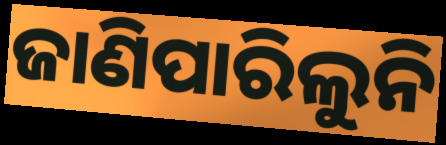
ଜାଣିପାରିଲୁନି